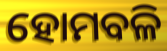
ହୋମବଳି